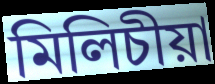
মিলিচীয়া